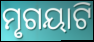
ମୃଗୟାଟି